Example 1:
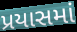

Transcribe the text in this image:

પ્રયાસમાં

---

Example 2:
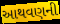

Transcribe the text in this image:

આથવણની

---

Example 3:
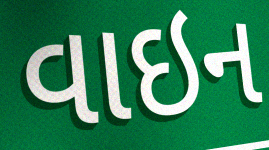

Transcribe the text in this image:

વાઇન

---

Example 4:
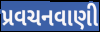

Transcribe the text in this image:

પ્રવચનવાણી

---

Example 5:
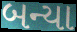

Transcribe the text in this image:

બન્યા